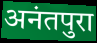
अनंतपुरा